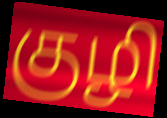
குழி